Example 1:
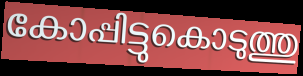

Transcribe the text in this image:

കോപ്പിട്ടുകൊടുത്തു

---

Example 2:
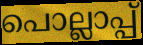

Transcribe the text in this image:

പൊല്ലാപ്പ്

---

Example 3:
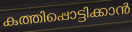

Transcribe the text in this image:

കുത്തിപ്പൊട്ടിക്കാൻ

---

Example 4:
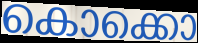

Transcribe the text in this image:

കൊക്കൊ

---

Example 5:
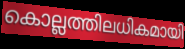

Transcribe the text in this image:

കൊല്ലത്തിലധികമായി